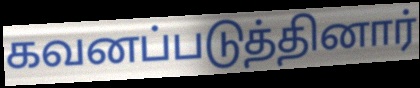
கவனப்படுத்தினார்